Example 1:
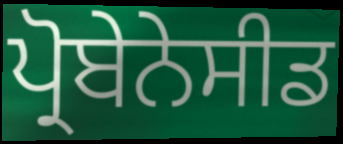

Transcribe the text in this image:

ਪ੍ਰੋਬੇਨੇਸੀਡ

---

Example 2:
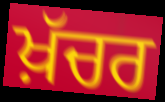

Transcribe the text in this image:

ਖ਼ੱਚਰ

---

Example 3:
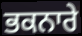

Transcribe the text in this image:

ਭਕਨਾਰੇ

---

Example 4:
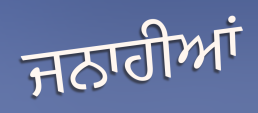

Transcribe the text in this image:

ਜਨਾਹੀਆਂ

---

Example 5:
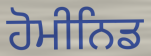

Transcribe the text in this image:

ਹੋਮੀਨਿਡ